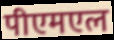
पीएमएल